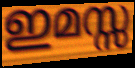
ഇമസ്സ